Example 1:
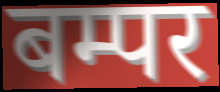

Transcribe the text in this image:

बम्पर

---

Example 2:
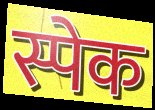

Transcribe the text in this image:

स्पेक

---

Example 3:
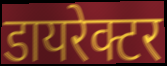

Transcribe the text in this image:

डायरेक्टर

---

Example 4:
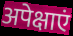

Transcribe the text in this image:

अपेक्षाएं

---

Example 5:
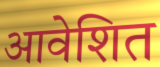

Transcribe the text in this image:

आवेशित